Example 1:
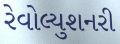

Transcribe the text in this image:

રેવોલ્યુશનરી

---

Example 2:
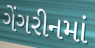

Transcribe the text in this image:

ગેંગરીનમાં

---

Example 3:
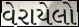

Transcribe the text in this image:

વેરાયેલો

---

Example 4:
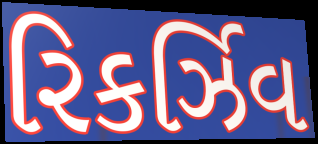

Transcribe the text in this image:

રિકર્ઝિવ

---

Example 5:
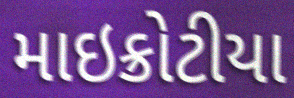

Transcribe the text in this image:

માઇક્રોટીયા